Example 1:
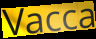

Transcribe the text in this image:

Vacca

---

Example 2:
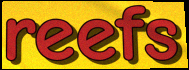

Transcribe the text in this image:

reefs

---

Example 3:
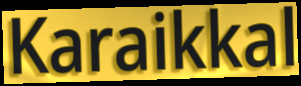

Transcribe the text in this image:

Karaikkal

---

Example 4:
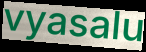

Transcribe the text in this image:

vyasalu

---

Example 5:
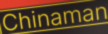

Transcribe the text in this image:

Chinaman